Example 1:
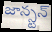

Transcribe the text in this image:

జాన్స్టన్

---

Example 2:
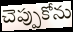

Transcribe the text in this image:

చెప్పుకోను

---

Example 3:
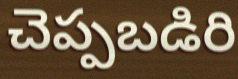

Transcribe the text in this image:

చెప్పబడిరి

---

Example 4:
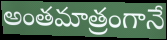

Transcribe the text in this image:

అంతమాత్రంగానే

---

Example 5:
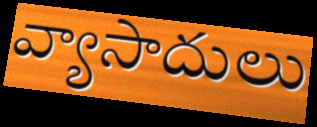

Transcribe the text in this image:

వ్యాసాదులు